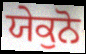
ਯੇਕੁਨੋ